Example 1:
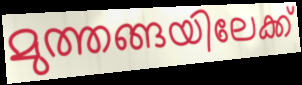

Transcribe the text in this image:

മുത്തങ്ങയിലേക്ക്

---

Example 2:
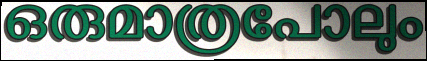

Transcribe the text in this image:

ഒരുമാത്രപോലും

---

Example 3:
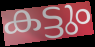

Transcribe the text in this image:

കട്ടും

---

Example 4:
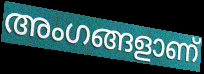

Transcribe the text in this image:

അംഗങ്ങളാണ്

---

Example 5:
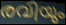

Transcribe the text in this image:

രവിയും